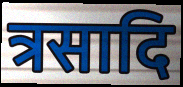
त्रसादि